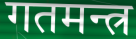
गतमन्त्र